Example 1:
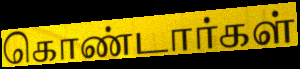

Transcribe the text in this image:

கொண்டார்கள்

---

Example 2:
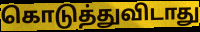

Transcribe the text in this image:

கொடுத்துவிடாது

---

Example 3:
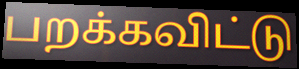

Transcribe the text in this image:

பறக்கவிட்டு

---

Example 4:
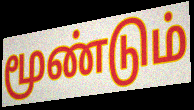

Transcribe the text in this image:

மூண்டும்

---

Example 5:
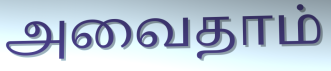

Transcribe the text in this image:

அவைதாம்